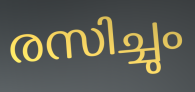
രസിച്ചും